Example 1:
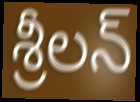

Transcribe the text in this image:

శ్రీలన్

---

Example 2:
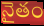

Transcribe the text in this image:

నైతం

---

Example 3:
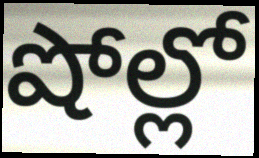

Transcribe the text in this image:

షోల్లో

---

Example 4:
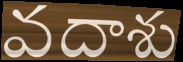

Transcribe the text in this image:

వదాశు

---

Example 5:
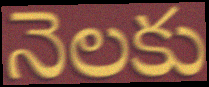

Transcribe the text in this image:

నెలకు